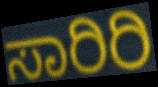
ಸಾರಿರಿ